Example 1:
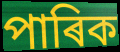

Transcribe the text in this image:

পাৰিক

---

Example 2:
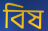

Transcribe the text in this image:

বিষ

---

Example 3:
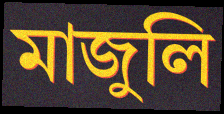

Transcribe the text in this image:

মাজুলি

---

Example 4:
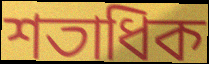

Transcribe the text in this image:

শতাধিক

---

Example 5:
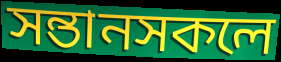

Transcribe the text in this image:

সন্তানসকলে